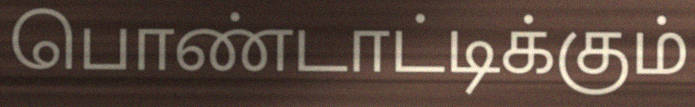
பொண்டாட்டிக்கும்